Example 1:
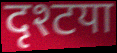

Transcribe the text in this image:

दृश्टया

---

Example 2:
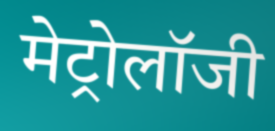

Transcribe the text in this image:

मेट्रोलॉजी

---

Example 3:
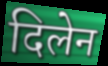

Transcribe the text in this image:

दिलेन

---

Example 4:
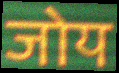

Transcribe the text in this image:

जोय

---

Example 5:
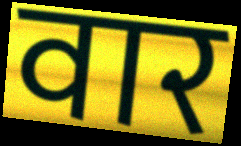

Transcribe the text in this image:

वार